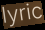
lyric